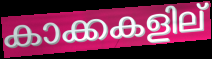
കാക്കകളില്